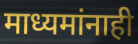
माध्यमांनाही